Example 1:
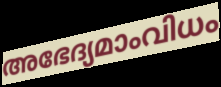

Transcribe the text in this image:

അഭേദ്യമാംവിധം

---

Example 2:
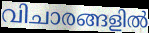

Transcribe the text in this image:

വിചാരങ്ങളിൽ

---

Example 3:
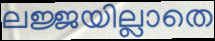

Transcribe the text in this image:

ലജ്ജയില്ലാതെ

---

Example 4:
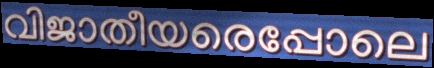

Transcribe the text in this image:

വിജാതീയരെപ്പോലെ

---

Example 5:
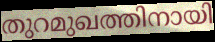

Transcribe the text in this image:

തുറമുഖത്തിനായി